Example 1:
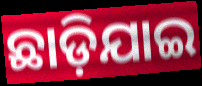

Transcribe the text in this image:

ଛାଡ଼ିଯାଇ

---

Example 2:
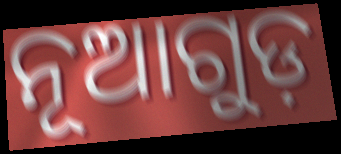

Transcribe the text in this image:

ନୂଆଗୁଡ଼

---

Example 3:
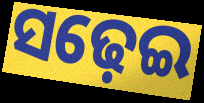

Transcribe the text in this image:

ସଢ଼େଇ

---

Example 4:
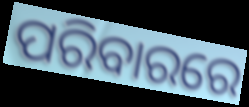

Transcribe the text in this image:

ପରିବାରରେ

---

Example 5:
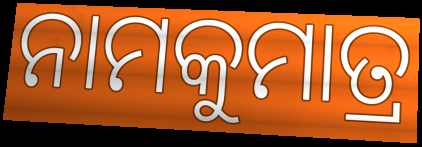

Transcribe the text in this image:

ନାମକୁମାତ୍ର